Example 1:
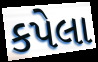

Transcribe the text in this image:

કપેલા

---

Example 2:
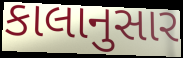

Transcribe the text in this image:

કાલાનુસાર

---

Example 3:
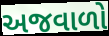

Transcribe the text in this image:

અજવાળો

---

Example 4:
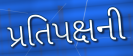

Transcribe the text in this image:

પ્રતિપક્ષની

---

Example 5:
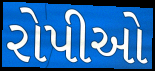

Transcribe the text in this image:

રોપીઓ